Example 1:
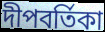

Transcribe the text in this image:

দীপবর্তিকা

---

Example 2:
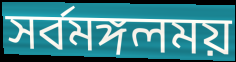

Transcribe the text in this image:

সর্বমঙ্গলময়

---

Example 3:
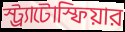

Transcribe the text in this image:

স্ট্র্যাটোস্ফিয়ার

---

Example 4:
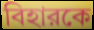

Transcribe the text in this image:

বিহারকে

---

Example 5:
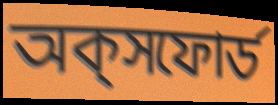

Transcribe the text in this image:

অক্‌সফোর্ড